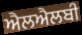
ਐਲਐਲਬੀ